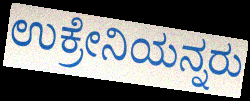
ಉಕ್ರೇನಿಯನ್ನರು